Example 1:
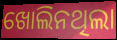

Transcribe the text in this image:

ଖୋଲିନଥିଲା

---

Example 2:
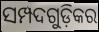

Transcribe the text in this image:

ସମ୍ପଦଗୁଡ଼ିକର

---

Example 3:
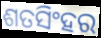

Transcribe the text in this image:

ଶତସିଂହର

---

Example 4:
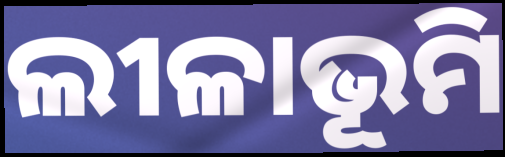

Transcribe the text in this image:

ଲୀଳାଭୂମି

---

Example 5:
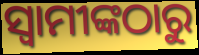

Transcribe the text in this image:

ସ୍ବାମୀଙ୍କଠାରୁ